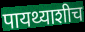
पायथ्याशीच